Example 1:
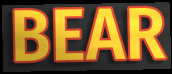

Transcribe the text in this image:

BEAR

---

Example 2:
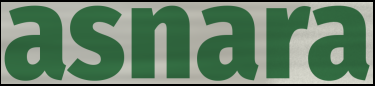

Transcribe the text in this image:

asnara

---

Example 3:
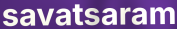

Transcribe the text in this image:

savatsaram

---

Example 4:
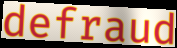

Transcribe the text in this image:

defraud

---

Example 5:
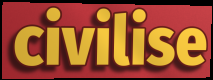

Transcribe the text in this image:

civilise